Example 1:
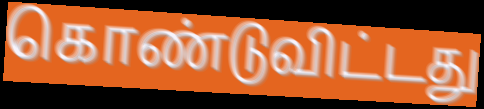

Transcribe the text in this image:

கொண்டுவிட்டது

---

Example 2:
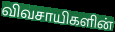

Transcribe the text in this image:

விவசாயிகளின்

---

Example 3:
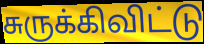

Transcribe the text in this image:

சுருக்கிவிட்டு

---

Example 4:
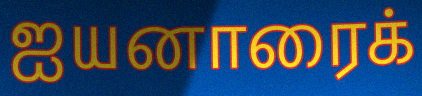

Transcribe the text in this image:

ஐயனாரைக்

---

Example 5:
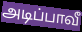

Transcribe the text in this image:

அடிப்பாவீ